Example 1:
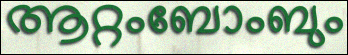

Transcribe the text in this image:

ആറ്റംബോംബും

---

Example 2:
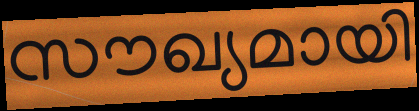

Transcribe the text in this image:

സൗഖ്യമായി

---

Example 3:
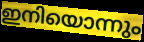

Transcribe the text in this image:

ഇനിയൊന്നും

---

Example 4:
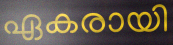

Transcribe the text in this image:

ഏകരായി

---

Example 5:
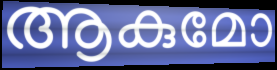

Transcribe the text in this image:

ആകുമോ